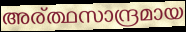
അര്ത്ഥസാന്ദ്രമായ